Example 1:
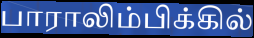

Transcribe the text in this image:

பாராலிம்பிக்கில்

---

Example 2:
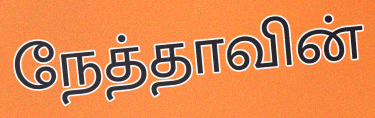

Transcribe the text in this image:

நேத்தாவின்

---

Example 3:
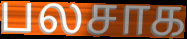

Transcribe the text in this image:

பலசாக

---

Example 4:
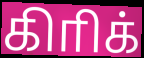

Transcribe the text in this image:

கிரிக்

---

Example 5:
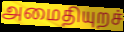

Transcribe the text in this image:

அமைதியுறச்